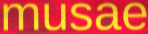
musae